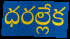
ధరల్లేక